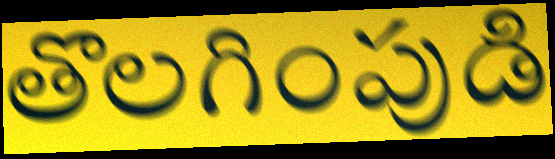
తొలగింపుడి